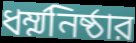
ধর্ম্মনিষ্ঠার